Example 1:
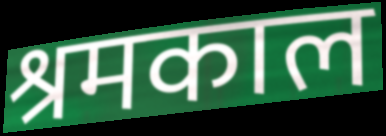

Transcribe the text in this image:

श्रमकाल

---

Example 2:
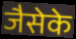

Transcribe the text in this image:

जैसेके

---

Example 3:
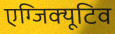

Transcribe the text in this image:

एग्जिक्यूटिव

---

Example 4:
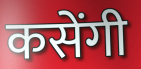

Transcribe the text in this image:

कसेंगी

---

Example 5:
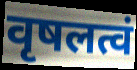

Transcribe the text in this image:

वृषलत्वं